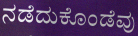
ನಡೆದುಕೊಂಡೆವು